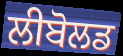
ਲੀਬੋਲਡ